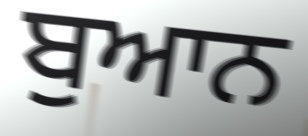
ਬੁਆਨ